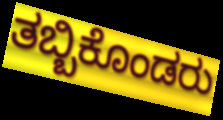
ತಬ್ಬಿಕೊಂಡರು